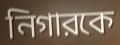
নিগারকে